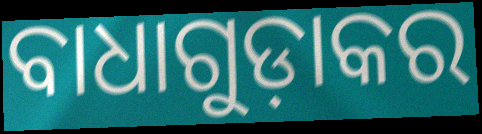
ବାଧାଗୁଡ଼ାକର